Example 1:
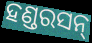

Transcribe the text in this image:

ହଣ୍ଡରସନ୍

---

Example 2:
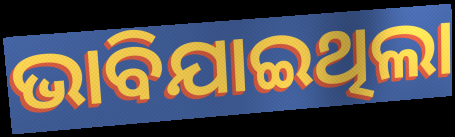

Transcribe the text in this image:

ଭାବିଯାଇଥିଲା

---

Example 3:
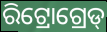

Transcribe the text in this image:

ରିଟ୍ରୋଗ୍ରେଡ୍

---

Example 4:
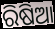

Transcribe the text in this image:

ରିଷିଆ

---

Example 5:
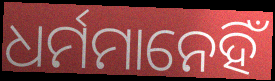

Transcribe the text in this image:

ଧର୍ମମାନେହିଁ